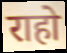
राहो